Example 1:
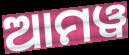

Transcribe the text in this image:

ଆମୱ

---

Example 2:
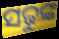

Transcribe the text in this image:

ସଢୁଙ୍କ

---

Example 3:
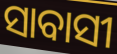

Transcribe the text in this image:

ସାବାସୀ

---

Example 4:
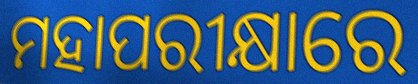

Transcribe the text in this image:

ମହାପରୀକ୍ଷାରେ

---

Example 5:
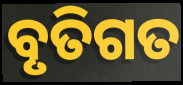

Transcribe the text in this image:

ବୃତିଗତ